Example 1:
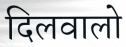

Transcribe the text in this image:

दिलवालो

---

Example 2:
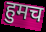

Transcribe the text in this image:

हुमच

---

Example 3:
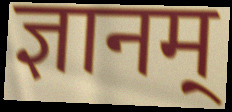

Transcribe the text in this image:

ज्ञानम्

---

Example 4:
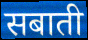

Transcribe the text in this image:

सबाती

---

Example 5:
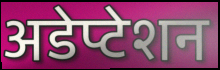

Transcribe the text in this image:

अडेप्टेशन